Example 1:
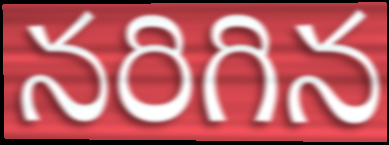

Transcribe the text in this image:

నరిగిన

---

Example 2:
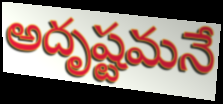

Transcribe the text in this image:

అదృష్టమనే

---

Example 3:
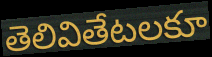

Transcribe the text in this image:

తెలివితేటలకూ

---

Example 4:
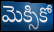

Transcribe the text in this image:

మెక్సికో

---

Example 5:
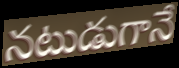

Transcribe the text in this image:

నటుడుగానే